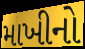
માખીનો